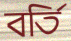
বৰ্তি